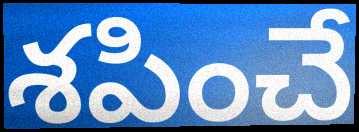
శపించే